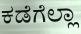
ಕಡೆಗೆಲ್ಲಾ